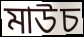
মাউচ